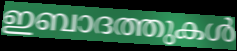
ഇബാദത്തുകൾ